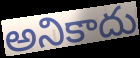
అనికాదు